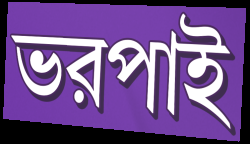
ভরপাই